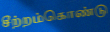
சீற்றம்கொண்டு